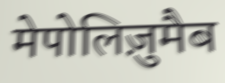
मेपोलिज़ुमैब